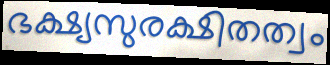
ഭക്ഷ്യസുരക്ഷിതത്വം